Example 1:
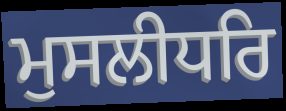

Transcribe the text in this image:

ਮੁਸਲੀਧਰਿ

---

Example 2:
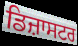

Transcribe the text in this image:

ਡਿਜ਼ਾਸਟਰ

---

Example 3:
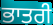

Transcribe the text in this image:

ਭਾਤਰੀ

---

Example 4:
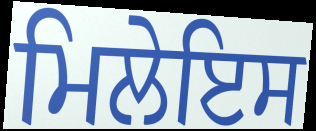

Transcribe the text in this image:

ਮਿਲੇਇਸ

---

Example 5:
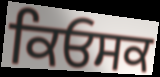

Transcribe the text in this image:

ਕਿਓਸਕ